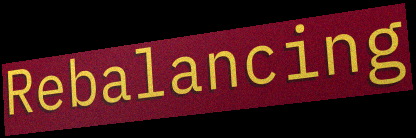
Rebalancing